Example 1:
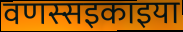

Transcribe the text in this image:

वणस्सइकाइया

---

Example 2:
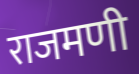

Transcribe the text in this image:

राजमणी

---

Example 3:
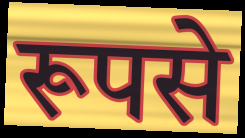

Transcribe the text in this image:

रूपसे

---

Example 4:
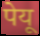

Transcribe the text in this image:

पेयू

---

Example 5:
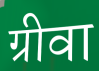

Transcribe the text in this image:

ग्रीवा